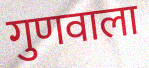
गुणवाला